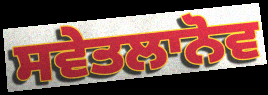
ਸਵੇਤਲਾਨੋਵ